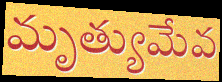
మృత్యుమేవ